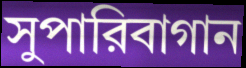
সুপারিবাগান